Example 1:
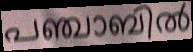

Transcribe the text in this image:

പഞ്ചാബിൽ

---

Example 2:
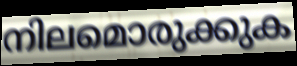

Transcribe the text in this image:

നിലമൊരുക്കുക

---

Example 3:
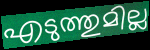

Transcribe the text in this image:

എടുത്തുമില്ല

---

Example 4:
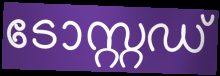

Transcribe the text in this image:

ടോസ്റ്റഡ്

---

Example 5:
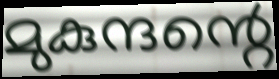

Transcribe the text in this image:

മുകുന്ദന്റെ